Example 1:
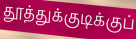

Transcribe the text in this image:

தூத்துக்குடிக்குப்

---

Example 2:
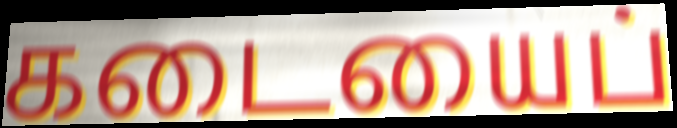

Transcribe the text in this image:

கடையைப்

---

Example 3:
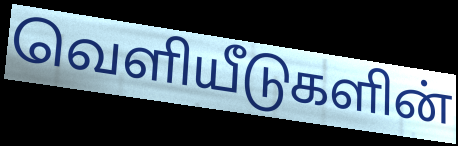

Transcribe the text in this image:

வெளியீடுகளின்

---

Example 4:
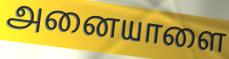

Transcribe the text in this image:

அனையாளை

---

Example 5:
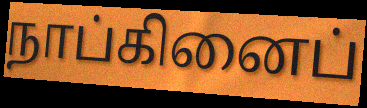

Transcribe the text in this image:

நாப்கினைப்